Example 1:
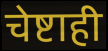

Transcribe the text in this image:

चेष्टाही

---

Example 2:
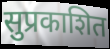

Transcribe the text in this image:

सुप्रकाशित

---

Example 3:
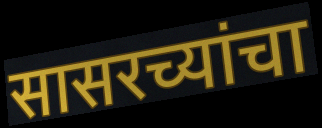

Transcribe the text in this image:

सासरच्यांचा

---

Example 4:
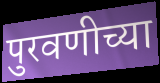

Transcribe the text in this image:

पुरवणीच्या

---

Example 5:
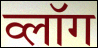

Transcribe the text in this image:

व्लॉग